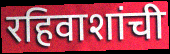
रहिवाशांची